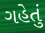
ગહેતું